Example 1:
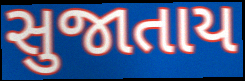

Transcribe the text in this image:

સુજાતાય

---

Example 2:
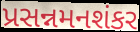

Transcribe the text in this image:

પ્રસન્નમનશંકર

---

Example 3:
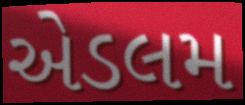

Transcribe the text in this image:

એડલમ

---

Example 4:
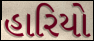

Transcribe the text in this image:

હારિયો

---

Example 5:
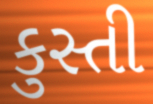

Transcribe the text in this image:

કુસ્તી